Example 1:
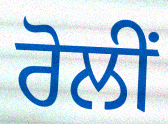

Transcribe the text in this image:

ਰੋਲੀਂ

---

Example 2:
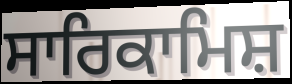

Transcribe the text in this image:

ਸਾਰਿਕਾਮਿਸ਼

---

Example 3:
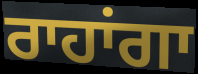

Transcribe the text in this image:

ਰਾਹਾਂਗਾ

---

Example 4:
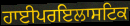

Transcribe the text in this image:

ਹਾਈਪਰਇਲਾਸਟਿਕ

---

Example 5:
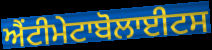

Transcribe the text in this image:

ਐਂਟੀਮੇਟਾਬੋਲਾਈਟਸ